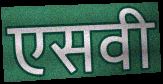
एसवी